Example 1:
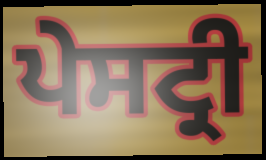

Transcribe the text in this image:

ਪੇਸਟ੍ਰੀ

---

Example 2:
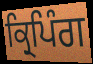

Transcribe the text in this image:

ਕ੍ਰਿਪਿੰਗ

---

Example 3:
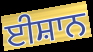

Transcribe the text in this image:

ਈਸ਼ਾਨ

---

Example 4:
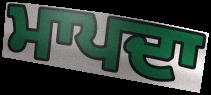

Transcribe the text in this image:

ਮਾਪਦਾ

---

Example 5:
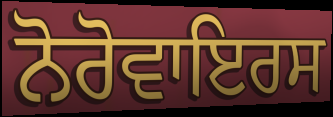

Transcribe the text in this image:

ਨੋਰੋਵਾਇਰਸ